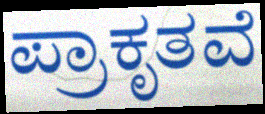
ಪ್ರಾಕೃತವೆ